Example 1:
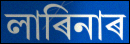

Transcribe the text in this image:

লাৰিনাৰ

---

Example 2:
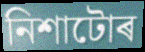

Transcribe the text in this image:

নিশাটোৰ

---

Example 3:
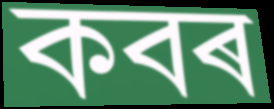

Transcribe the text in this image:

কবৰ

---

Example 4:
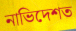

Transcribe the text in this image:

নাভিদেশত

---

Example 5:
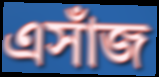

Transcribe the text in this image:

এসাঁজ